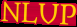
NLUP